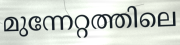
മുന്നേറ്റത്തിലെ